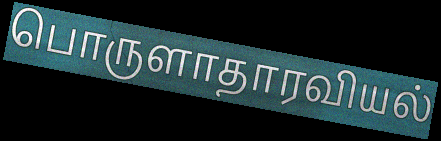
பொருளாதாரவியல்